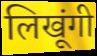
लिखूंगी